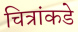
चित्रांकडे